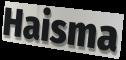
Haisma